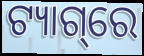
ଟ୍ୟାଗ୍‌ରେ